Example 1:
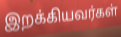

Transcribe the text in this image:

இறக்கியவர்கள்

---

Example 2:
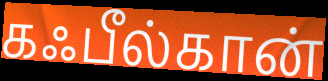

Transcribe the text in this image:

கஃபீல்கான்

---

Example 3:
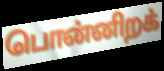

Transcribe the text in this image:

பொன்னிறக்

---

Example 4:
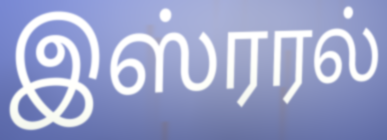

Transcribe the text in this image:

இஸ்ரரல்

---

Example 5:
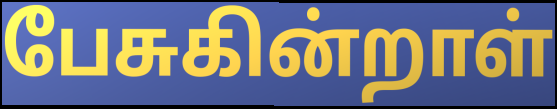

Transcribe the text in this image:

பேசுகின்றாள்